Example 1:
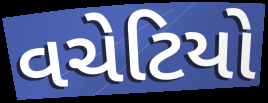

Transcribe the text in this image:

વચેટિયો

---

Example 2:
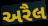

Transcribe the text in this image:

અરૈલ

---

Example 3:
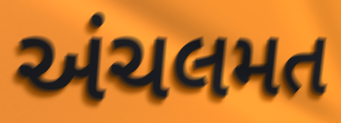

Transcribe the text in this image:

અંચલમત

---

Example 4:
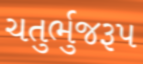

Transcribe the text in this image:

ચતુર્ભુજરૂપ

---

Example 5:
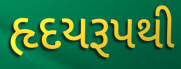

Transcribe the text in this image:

હૃદયરૂપથી